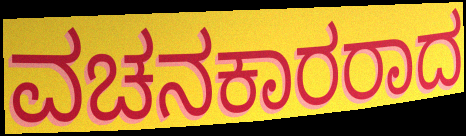
ವಚನಕಾರರಾದ